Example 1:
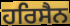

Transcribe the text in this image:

ਹਰਿਸੈਨ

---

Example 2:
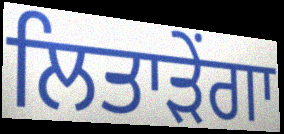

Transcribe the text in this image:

ਲਿਤਾੜੇਂਗਾ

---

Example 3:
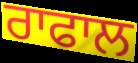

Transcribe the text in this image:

ਰਾਫਾਲ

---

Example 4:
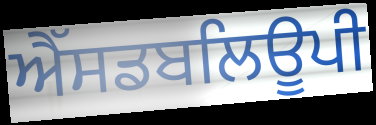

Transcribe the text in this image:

ਐੱਸਡਬਲਿਊਪੀ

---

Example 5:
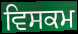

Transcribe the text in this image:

ਵਿਸਕਮ